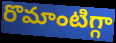
రొమాంటిగ్గా